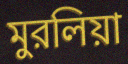
মুরলিয়া